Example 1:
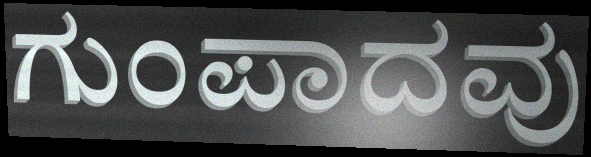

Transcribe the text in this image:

ಗುಂಪಾದವು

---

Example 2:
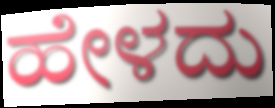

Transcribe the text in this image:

ಹೇಳದು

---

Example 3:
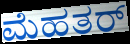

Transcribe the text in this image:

ಮೆಹತರ್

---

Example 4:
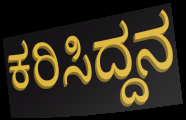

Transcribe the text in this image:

ಕರಿಸಿದ್ದನ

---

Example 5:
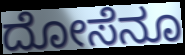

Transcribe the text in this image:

ದೋಸೆನೂ